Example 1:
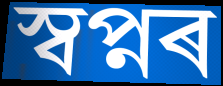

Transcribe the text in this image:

স্বপ্নৰ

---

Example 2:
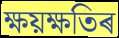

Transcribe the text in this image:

ক্ষয়ক্ষতিৰ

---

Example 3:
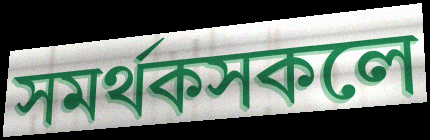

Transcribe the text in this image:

সমৰ্থকসকলে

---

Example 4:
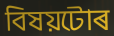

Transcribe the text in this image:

বিষয়টোৰ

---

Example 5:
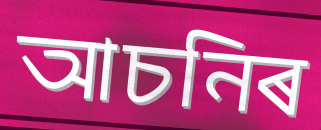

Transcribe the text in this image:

আচনিৰ